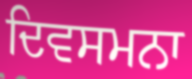
ਦਿਵਸਮਨਾ